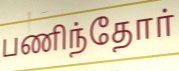
பணிந்தோர்